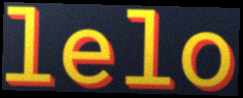
lelo